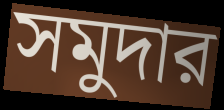
সমুদার